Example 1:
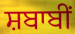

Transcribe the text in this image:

ਸ਼ਬਾਬੀਂ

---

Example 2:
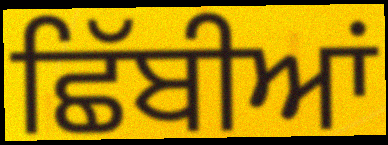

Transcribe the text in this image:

ਛਿੱਬੀਆਂ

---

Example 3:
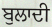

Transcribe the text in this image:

ਬੁਲਾਦੀ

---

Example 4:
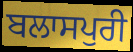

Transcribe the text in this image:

ਬਲਾਸਪੁਰੀ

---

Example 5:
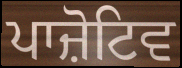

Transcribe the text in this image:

ਪਾਜ਼ੋਟਿਵ